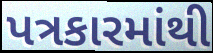
પત્રકારમાંથી